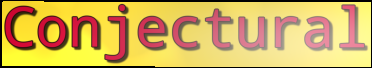
Conjectural